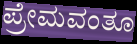
ಪ್ರೇಮವಂತೂ